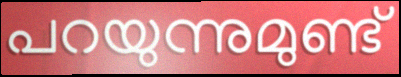
പറയുന്നുമുണ്ട്